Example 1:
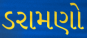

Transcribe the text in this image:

ડરામણો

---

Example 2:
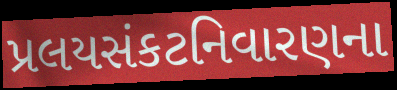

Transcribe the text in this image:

પ્રલયસંકટનિવારણના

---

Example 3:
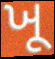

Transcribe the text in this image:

ખૂ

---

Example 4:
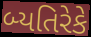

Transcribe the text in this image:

બ્યતિરેકે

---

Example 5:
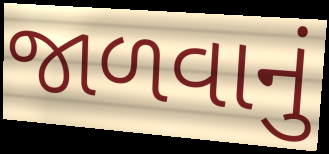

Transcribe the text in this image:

જાળવાનું